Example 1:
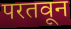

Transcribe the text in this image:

परतवून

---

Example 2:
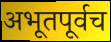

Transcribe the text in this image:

अभूतपूर्वच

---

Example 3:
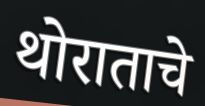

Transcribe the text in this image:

थोराताचे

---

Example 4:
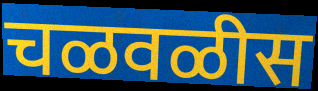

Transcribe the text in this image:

चळवळीस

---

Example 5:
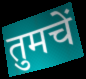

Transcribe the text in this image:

तुमचें